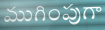
ముగింపుగా